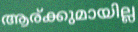
ആര്ക്കുമായില്ല